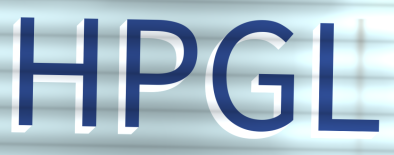
HPGL